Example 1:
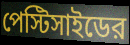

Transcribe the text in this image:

পেস্টিসাইডের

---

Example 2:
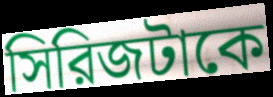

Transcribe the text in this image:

সিরিজটাকে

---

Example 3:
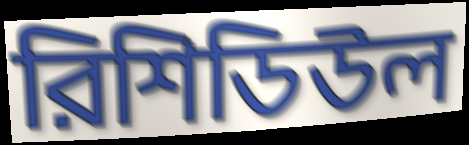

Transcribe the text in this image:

রিশিডিউল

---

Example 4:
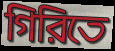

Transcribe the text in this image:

গিরিতে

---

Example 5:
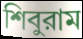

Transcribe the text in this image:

শিবুরাম